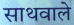
साथवाले